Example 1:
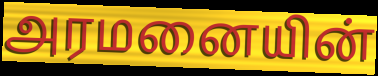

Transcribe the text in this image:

அரமனையின்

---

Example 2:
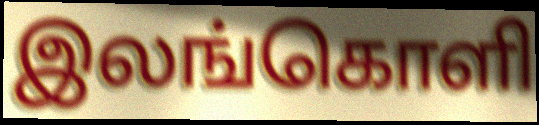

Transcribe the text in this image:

இலங்கொளி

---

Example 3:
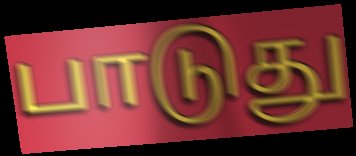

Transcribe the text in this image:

பாடுது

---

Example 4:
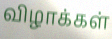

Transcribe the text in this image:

விழாக்கள்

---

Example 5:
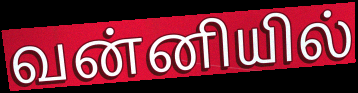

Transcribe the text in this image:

வன்னியில்